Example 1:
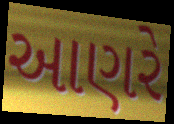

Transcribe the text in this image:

આણરે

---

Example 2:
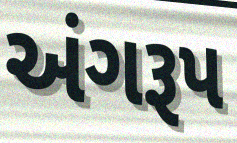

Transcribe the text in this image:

અંગરૂપ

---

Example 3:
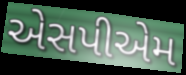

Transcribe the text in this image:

એસપીએમ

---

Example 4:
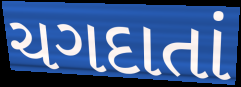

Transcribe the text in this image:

ચગદાતાં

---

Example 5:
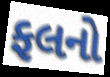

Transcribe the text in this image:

ફલનો